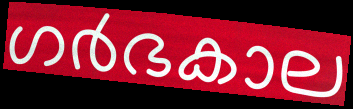
ഗർഭകാല